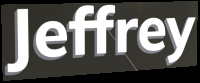
Jeffrey